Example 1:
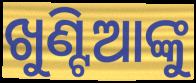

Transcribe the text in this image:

ଖୁଣ୍ଟିଆଙ୍କୁ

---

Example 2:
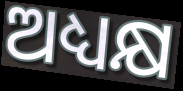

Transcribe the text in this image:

ଅଧ୍ୟକ୍ଷ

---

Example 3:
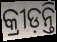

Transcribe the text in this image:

କ୍ରୀଡ଼ନ୍ତି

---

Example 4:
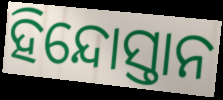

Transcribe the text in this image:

ହିନ୍ଦୋସ୍ତାନ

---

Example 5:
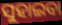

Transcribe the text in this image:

ସୁହାଇବା